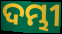
ଦମ୍ଭୀ